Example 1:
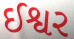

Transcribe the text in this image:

ઈશ્વર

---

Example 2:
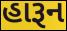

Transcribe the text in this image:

હારૂન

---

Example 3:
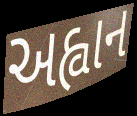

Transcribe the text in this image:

અહ્વાન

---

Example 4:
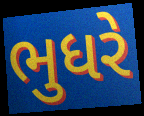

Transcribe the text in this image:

ભુધરે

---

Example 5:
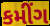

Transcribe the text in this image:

કમીંગ